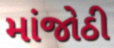
માંજોઠી